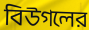
বিউগলের